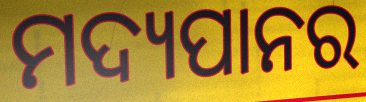
ମଦ୍ୟପାନର